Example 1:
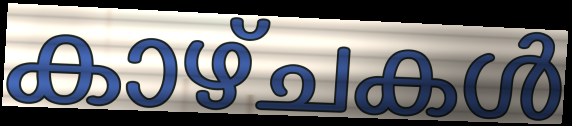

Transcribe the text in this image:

കാഴ്‌ചകൾ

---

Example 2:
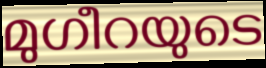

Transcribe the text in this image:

മുഗീറയുടെ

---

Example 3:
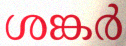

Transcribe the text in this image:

ശങ്കർ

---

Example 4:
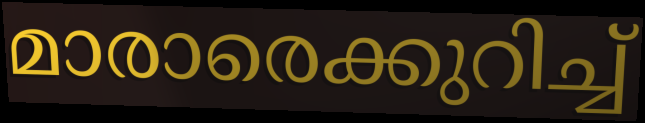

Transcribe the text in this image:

മാരാരെക്കുറിച്ച്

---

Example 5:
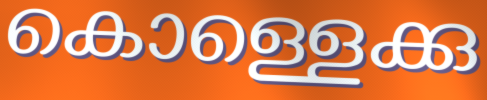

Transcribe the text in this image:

കൊള്ളെക്കു